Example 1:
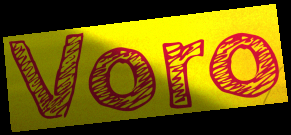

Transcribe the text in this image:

Voro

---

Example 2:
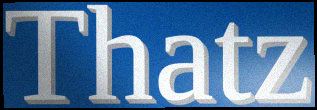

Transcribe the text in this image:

Thatz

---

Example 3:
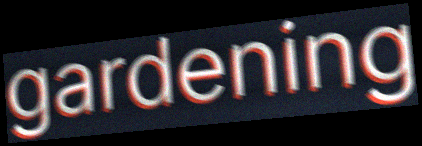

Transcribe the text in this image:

gardening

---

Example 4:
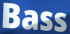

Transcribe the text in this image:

Bass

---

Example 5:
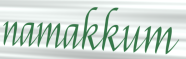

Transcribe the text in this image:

namakkum